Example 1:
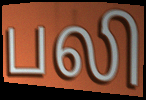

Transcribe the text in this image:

பலி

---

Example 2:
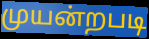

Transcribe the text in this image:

முயன்றபடி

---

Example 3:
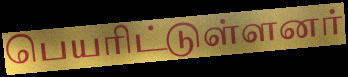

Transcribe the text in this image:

பெயரிட்டுள்ளனர்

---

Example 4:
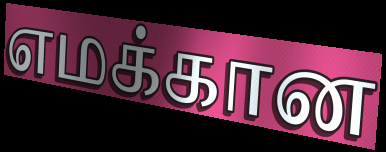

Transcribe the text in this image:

எமக்கான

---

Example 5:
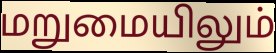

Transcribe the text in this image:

மறுமையிலும்